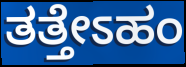
ತತ್ತೇಽಹಂ